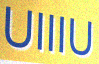
UIIIU